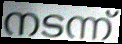
നടന്ന്